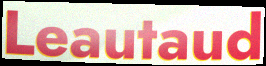
Leautaud